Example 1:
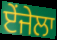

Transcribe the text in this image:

ਏਂਜੇਲਾ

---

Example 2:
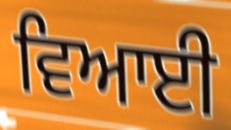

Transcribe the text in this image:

ਵਿਆਈ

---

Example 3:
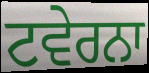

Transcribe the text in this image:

ਟਵੇਰਨਾ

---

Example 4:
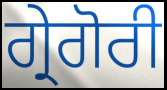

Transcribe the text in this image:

ਗ੍ਰੇਗੋਰੀ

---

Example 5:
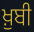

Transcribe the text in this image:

ਖ਼ੁਬੀ